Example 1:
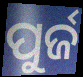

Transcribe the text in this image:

ପୁର୍ଜ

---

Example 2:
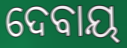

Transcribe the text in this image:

ଦେବାୟ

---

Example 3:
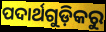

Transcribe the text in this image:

ପଦାର୍ଥଗୁଡ଼ିକରୁ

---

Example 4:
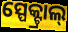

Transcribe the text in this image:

ସ୍ପେକ୍ଟ୍ରାଲ୍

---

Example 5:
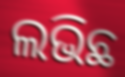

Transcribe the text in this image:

ଲଭିଛ